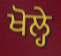
ਖੋਲ੍ਹੇ